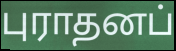
புராதனப்